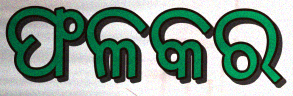
ଫଳକର